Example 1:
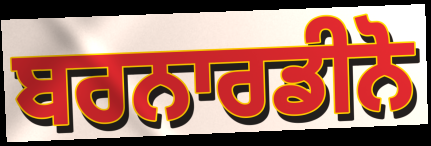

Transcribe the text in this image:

ਬਰਨਾਰਡੀਨੋ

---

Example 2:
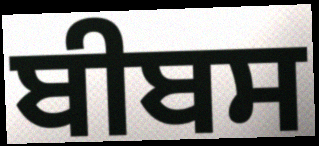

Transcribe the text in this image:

ਬੀਬਸ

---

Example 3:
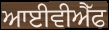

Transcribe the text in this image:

ਆਈਵੀਐੱਫ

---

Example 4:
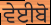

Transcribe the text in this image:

ਵੇਈਬੋ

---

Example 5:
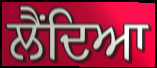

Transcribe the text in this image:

ਲੈਂਦਿਆ